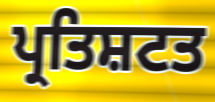
ਪ੍ਰਤਿਸ਼ਟਤ